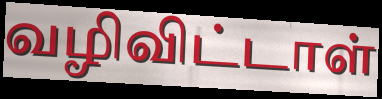
வழிவிட்டாள்